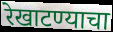
रेखाटण्याचा